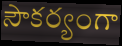
సౌకర్యంగా